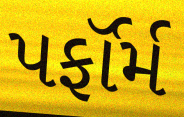
પર્ફૉર્મ